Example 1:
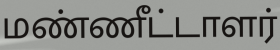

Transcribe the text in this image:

மண்ணீட்டாளர்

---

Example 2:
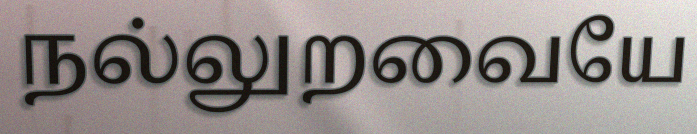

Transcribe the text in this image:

நல்லுறவையே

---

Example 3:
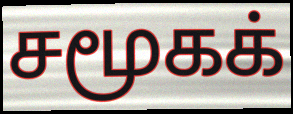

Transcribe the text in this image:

சமூகக்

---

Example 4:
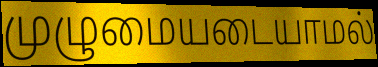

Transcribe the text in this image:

முழுமையடையாமல்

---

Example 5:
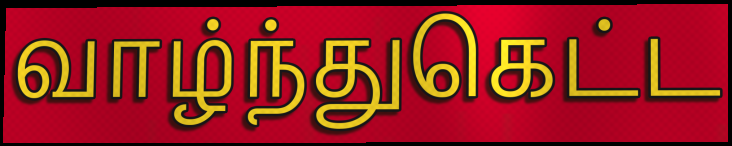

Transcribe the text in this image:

வாழ்ந்துகெட்ட